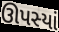
ઊપસ્યાં